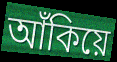
আঁকিয়ে